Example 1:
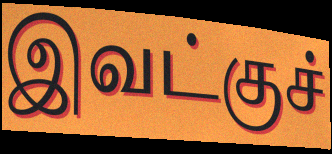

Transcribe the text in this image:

இவட்குச்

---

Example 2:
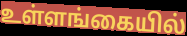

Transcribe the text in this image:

உள்ளங்கையில்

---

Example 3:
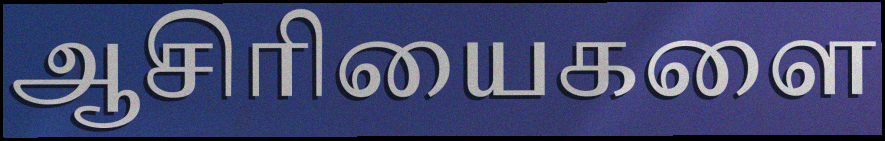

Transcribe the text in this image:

ஆசிரியைகளை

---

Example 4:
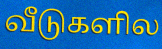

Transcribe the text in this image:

வீடுகளில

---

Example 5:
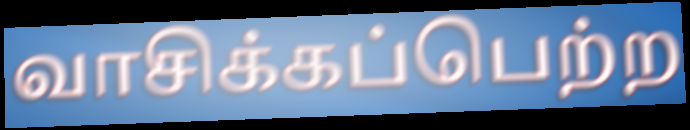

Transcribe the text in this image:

வாசிக்கப்பெற்ற